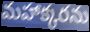
మహాక్కరను